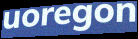
uoregon